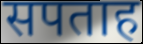
सपताह